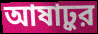
আষাঢ়ুর